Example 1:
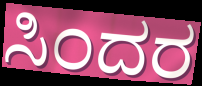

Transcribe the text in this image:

ಸಿಂದರ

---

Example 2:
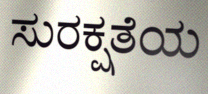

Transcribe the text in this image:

ಸುರಕ್ಷತೆಯ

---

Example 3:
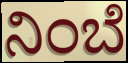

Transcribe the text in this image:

ನಿಂಬೆ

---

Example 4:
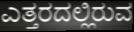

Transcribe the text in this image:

ಎತ್ತರದಲ್ಲಿರುವ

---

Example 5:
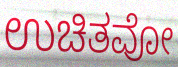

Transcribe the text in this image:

ಉಚಿತವೋ